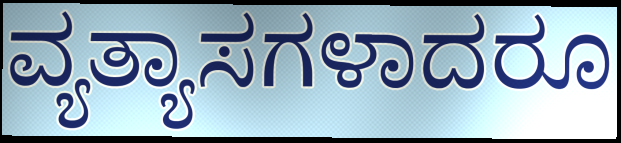
ವ್ಯತ್ಯಾಸಗಳಾದರೂ